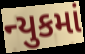
ન્યુકમાં